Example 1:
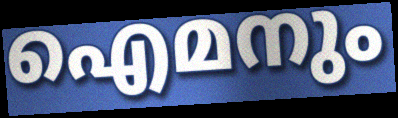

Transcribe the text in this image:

ഐമനും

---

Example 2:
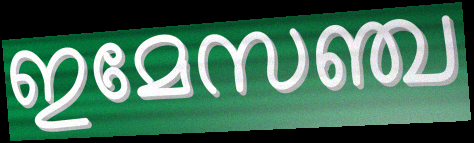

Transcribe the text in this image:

ഇമേസഞ്ച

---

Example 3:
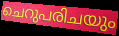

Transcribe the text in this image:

ചെറുപരിചയും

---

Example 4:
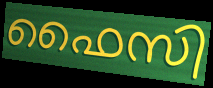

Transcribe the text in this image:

ഫൈസി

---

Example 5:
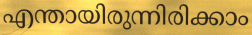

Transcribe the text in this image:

എന്തായിരുന്നിരിക്കാം